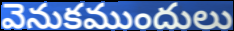
వెనుకముందులు